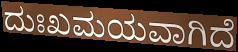
ದುಃಖಮಯವಾಗಿದೆ